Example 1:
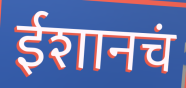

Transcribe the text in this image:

ईशानचं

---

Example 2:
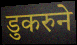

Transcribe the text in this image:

डुकरुने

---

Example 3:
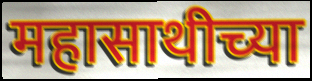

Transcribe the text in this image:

महासाथीच्या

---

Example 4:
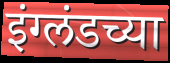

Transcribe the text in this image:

इंग्लंडच्या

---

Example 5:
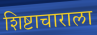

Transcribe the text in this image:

शिष्टाचाराला